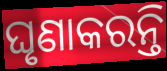
ଘୃଣାକରନ୍ତି